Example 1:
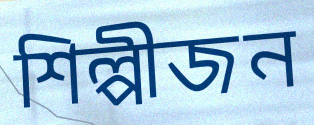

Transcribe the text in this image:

শিল্পীজন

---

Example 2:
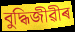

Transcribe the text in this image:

বুদ্ধিজীৱীৰ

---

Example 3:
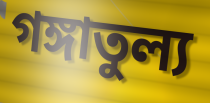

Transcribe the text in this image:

গঙ্গাতুল্য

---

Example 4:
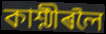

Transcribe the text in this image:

কাশ্মীৰলৈ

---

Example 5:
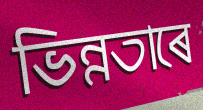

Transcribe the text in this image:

ভিন্নতাৰে